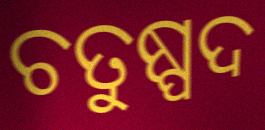
ଚତୁଷ୍ପଦ